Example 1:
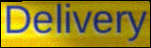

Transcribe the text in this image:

Delivery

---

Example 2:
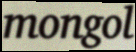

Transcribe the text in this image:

mongol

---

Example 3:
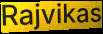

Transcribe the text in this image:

Rajvikas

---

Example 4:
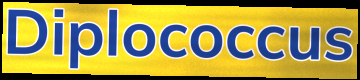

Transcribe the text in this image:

Diplococcus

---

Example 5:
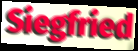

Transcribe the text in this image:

Siegfried